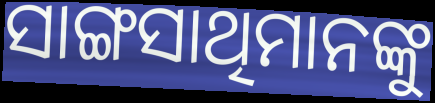
ସାଙ୍ଗସାଥିମାନଙ୍କୁ